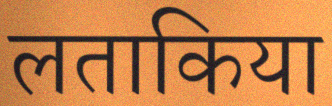
लताकिया